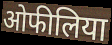
ओफीलिया